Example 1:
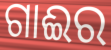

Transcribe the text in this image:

ଗାଈର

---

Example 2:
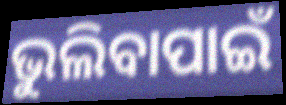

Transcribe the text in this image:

ଭୁଲିବାପାଇଁ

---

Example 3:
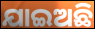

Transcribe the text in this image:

ଯାଇଅଛି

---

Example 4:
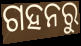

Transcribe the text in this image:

ଗହନରୁ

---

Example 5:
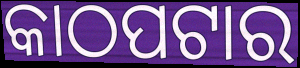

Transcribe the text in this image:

କାଠପଟାର